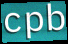
cpb